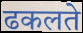
ढकलते